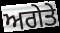
ਅਗੇਤੇ